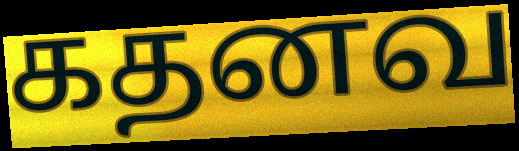
கதனவ